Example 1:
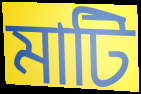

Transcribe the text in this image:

মাটি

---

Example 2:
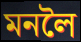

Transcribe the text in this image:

মনলৈ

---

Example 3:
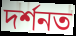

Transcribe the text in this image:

দৰ্শনত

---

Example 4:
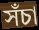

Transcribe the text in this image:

সঁচা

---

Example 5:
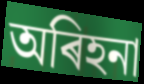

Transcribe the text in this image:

অৰিহনা